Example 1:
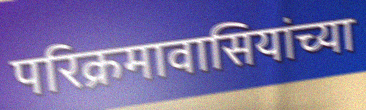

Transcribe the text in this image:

परिक्रमावासियांच्या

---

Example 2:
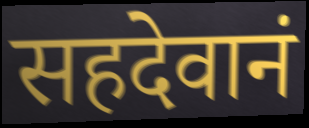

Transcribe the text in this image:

सहदेवानं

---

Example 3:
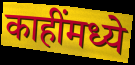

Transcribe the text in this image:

काहींमध्ये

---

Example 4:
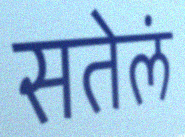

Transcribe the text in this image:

सतेलं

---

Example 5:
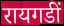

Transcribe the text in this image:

रायगडीं